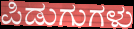
ಪಿಡುಗುಗಳು